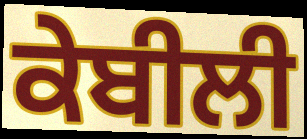
ਕੇਬੀਲੀ